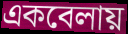
একবেলায়